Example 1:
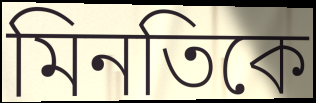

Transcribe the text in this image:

মিনতিকে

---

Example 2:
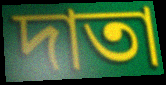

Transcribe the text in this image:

দাতা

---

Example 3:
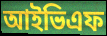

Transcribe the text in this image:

আইভিএফ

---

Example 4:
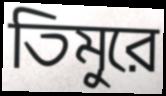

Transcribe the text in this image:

তিমুরে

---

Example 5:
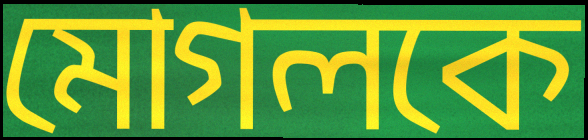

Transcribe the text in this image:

মোগলকে